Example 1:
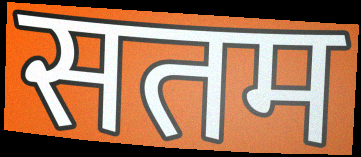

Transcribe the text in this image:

सतम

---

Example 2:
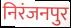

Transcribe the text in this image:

निरंजनपुर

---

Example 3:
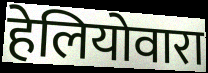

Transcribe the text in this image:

हेलियोवारा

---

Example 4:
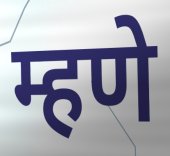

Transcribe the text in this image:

म्हणे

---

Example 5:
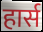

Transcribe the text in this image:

हार्स